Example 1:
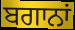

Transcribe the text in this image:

ਬਗਾਨਾਂ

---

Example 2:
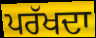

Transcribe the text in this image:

ਪਰੱਖਦਾ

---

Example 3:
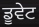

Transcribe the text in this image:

ਡੂਵੇਟ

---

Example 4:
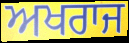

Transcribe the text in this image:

ਅਖਰਾਜ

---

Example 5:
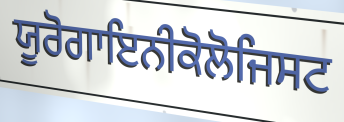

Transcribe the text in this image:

ਯੂਰੋਗਾਇਨੀਕੋਲੋਜਿਸਟ